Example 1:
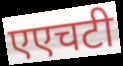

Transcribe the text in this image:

एएचटी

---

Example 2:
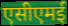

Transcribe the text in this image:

एसीएमई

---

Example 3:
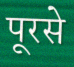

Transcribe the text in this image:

पूरसे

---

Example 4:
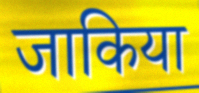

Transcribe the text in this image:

जाकिया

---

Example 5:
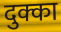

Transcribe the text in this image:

दुक्का